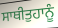
ਸਾਥੀਤੁਹਾਨੂੰ